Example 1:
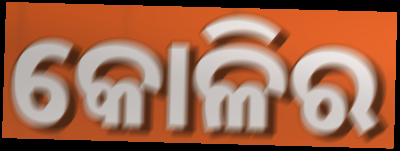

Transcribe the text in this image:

କୋଳିର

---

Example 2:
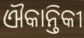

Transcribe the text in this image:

ଐକାନ୍ତିକୀ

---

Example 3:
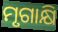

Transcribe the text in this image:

ମୃଗାକ୍ଷି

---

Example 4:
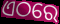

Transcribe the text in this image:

ଏଠରେ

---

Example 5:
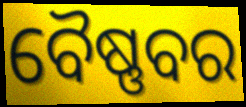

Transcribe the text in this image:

ବୈଷ୍ଣବର